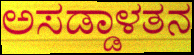
ಅಸಡ್ಡಾಳತನ